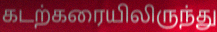
கடற்கரையிலிருந்து